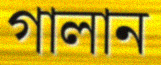
গালান